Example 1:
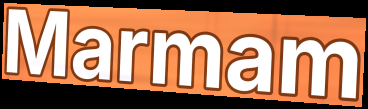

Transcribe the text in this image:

Marmam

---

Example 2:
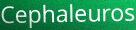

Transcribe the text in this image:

Cephaleuros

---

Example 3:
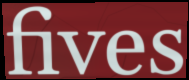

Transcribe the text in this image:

fives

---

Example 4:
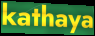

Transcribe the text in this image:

kathaya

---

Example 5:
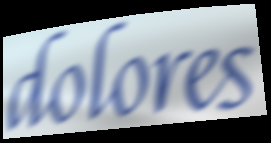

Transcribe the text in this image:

dolores